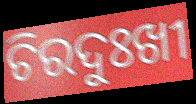
ଚିରଦୁଃଖୀ